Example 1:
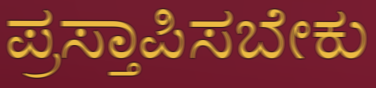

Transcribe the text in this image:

ಪ್ರಸ್ತಾಪಿಸಬೇಕು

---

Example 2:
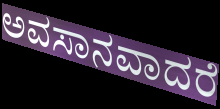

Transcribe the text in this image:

ಅವಸಾನವಾದರೆ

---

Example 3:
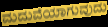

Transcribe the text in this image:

ಮದುವೆಯಾಗುವುದು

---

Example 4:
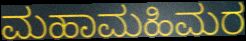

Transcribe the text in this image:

ಮಹಾಮಹಿಮರ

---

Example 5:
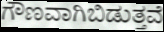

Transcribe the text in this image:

ಗೌಣವಾಗಿಬಿಡುತ್ತವೆ